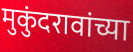
मुकुंदरावांच्या